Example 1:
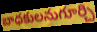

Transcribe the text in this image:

బాధకులనుగూర్చి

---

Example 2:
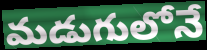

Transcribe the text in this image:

మడుగులోనే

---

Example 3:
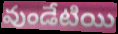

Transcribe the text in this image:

వుండేటియి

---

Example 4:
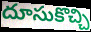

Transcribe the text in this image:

దూసుకొచ్చి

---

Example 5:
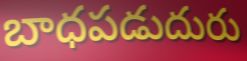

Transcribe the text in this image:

బాధపడుదురు